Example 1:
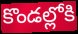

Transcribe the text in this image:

కొండల్లోకి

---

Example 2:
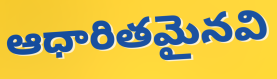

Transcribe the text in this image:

ఆధారితమైనవి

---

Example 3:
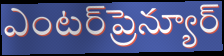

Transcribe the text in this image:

ఎంటర్‌ప్రెన్యూర్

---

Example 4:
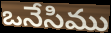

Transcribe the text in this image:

ఒనేసిము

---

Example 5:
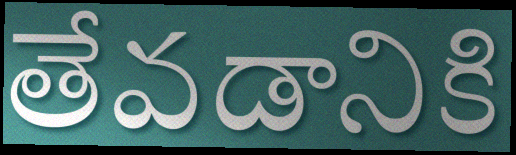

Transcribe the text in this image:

తేవడానికి